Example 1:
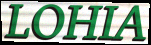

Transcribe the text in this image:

LOHIA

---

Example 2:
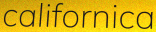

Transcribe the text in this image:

californica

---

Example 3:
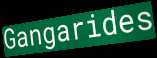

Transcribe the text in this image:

Gangarides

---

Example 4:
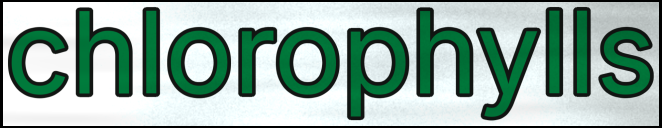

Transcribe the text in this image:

chlorophylls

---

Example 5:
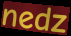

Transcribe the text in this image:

nedz